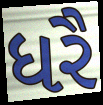
ધરૈ